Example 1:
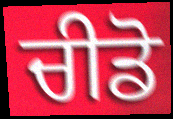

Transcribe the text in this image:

ਚੀਡੋ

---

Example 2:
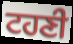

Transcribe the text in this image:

ਟਹਣੀ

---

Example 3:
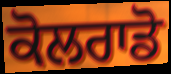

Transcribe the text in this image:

ਕੋਲਰਾਡੋ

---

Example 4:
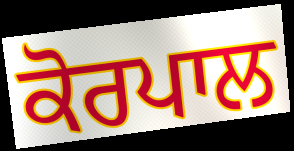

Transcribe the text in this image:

ਕੋਰਪਾਲ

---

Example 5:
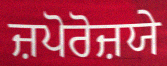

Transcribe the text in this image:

ਜ਼ਪੋਰੋਜ਼ਯੇ